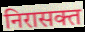
निरासक्त